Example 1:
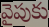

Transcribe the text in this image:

వైపుకు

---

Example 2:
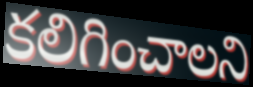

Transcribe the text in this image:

కలిగించాలని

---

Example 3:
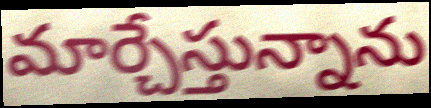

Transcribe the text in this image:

మార్చేస్తున్నాను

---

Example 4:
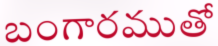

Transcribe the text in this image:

బంగారముతో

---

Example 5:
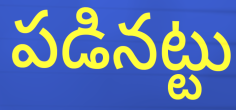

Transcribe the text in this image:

పడినట్టు